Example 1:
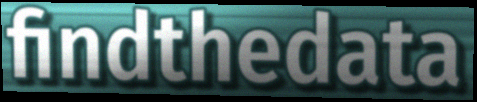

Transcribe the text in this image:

findthedata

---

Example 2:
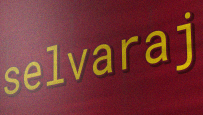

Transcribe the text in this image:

selvaraj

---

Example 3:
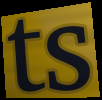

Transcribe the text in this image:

ts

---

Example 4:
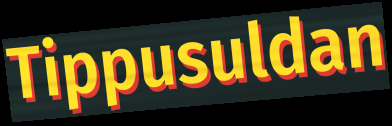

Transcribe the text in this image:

Tippusuldan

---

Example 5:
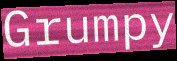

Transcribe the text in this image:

Grumpy